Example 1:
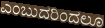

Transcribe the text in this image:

ಎಂಬುದರಿಂದಲೂ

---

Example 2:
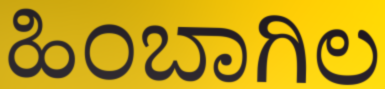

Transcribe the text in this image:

ಹಿಂಬಾಗಿಲ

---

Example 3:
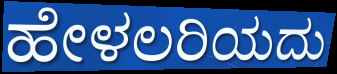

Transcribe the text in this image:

ಹೇಳಲರಿಯದು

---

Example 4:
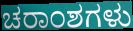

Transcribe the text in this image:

ಚರಾಂಶಗಳು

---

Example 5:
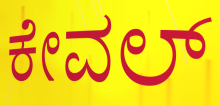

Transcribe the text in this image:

ಕೇವಲ್